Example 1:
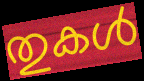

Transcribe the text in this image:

തുകൾ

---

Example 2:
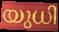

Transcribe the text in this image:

യുധി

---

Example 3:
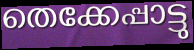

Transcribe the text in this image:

തെക്കേപ്പാട്ടു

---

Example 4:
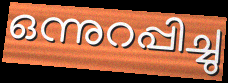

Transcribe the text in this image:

ഒന്നുറപ്പിച്ചു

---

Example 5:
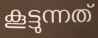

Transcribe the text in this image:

കൂട്ടുന്നത്